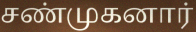
சண்முகனார்